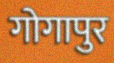
गोगापुर